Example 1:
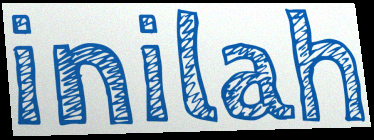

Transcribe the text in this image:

inilah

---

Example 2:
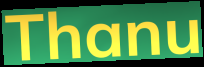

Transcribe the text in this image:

Thanu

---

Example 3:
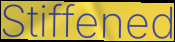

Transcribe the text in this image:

Stiffened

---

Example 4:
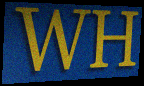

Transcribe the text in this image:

WH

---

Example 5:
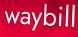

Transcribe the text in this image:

waybill